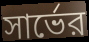
সার্ভের